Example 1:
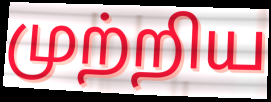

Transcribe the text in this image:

முற்றிய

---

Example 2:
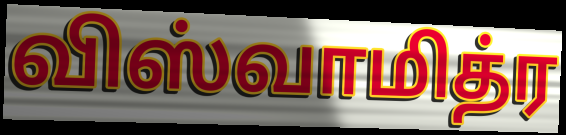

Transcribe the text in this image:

விஸ்வாமித்ர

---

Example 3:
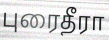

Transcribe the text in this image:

புரைதீரா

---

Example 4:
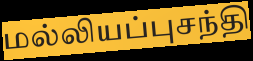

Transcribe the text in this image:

மல்லியப்புசந்தி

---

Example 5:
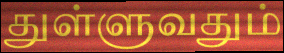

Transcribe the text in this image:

துள்ளுவதும்